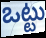
ఒట్టు